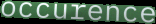
occurence